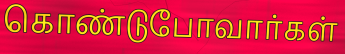
கொண்டுபோவார்கள்